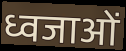
ध्वजाओं